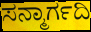
ಸನ್ಮಾರ್ಗದಿ